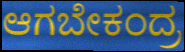
ಆಗಬೇಕಂದ್ರ